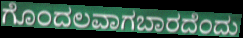
ಗೊಂದಲವಾಗಬಾರದೆಂದು